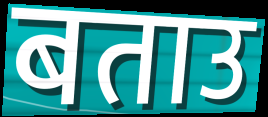
बताउ